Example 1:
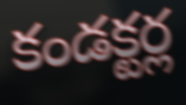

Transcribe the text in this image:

కండక్టర్ల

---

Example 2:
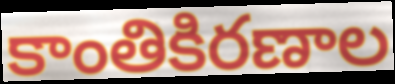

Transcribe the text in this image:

కాంతికిరణాల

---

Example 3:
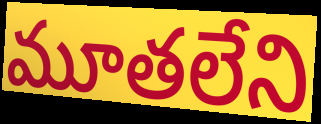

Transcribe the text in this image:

మూతలేని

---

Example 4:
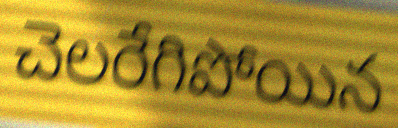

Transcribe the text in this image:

చెలరేగిపోయిన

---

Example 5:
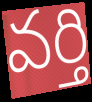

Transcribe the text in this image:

వర్తి